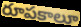
రూపకాలూ